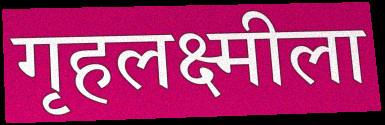
गृहलक्ष्मीला